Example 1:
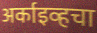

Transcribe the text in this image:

अर्काइव्हचा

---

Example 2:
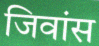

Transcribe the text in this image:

जिवांस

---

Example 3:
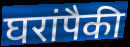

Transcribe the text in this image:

घरांपैकी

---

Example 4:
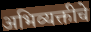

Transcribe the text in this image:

अभिव्यक्तीचे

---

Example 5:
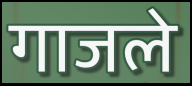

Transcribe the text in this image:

गाजले